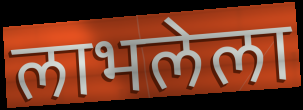
लाभलेला